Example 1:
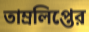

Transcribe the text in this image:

তাম্রলিপ্তের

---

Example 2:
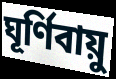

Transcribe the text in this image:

ঘূর্ণিবায়ু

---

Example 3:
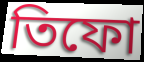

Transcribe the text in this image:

তিফো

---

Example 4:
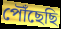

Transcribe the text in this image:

পৌঁছেছি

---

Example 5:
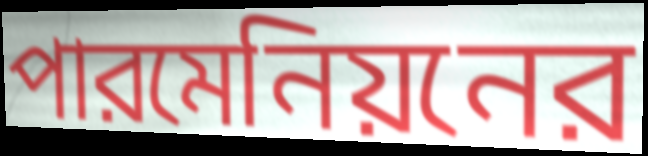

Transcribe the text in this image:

পারমেনিয়নের